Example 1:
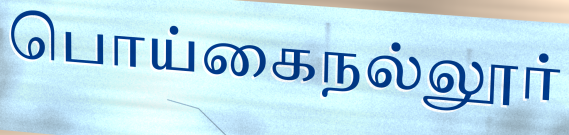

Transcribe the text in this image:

பொய்கைநல்லூர்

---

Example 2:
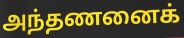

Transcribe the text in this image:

அந்தணனைக்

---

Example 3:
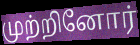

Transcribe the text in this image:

முற்றினோர்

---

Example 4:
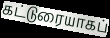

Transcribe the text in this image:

கட்டுரையாகப்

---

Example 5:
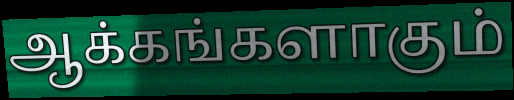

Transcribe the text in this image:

ஆக்கங்களாகும்